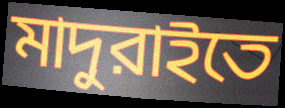
মাদুরাইতে